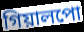
গিয়ালপো